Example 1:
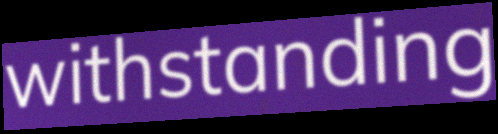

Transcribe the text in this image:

withstanding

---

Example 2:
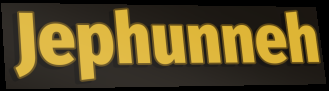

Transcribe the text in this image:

Jephunneh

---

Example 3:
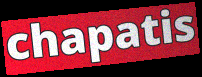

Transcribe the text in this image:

chapatis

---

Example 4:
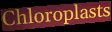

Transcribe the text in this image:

Chloroplasts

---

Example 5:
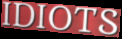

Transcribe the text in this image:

IDIOTS